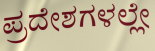
ಪ್ರದೇಶಗಳಲ್ಲೇ